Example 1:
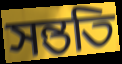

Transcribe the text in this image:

সন্ততি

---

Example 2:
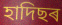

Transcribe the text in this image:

হাদিছৰ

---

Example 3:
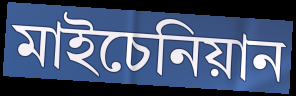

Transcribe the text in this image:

মাইচেনিয়ান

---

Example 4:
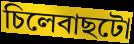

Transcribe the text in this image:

চিলেবাছটো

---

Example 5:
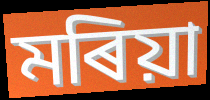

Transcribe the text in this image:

মৰিয়া